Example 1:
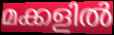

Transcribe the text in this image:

മക്കളിൽ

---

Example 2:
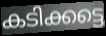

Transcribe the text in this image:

കടിക്കട്ടെ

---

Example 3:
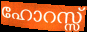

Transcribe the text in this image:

ഹോറസ്സ്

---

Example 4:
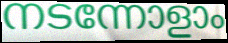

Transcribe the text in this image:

നടന്നോളാം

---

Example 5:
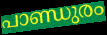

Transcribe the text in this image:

പാണ്ഡുരം